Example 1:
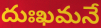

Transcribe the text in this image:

దుఃఖమనే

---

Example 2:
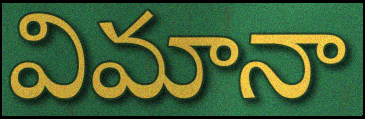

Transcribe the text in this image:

విమానా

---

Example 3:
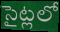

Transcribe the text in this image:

సైట్లలో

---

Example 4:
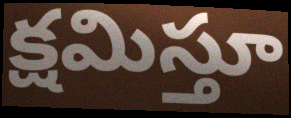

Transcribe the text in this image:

క్షమిస్తూ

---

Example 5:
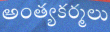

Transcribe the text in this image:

అంత్యకర్మలు